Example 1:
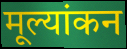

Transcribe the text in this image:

मूल्‍यांकन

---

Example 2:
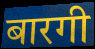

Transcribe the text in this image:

बारगी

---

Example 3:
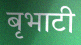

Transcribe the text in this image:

बृभाटी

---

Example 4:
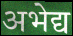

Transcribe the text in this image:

अभेद्य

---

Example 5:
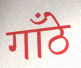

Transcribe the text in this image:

गाँठे